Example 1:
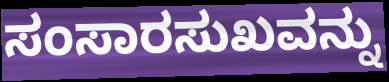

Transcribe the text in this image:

ಸಂಸಾರಸುಖವನ್ನು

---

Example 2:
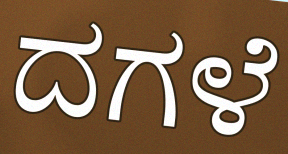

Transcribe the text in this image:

ದಗಳೆ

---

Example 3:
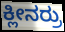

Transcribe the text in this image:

ಕ್ಲೀನರ್ರು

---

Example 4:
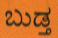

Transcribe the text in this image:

ಬುಡ್ತ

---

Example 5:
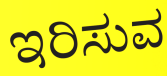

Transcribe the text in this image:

ಇರಿಸುವ